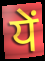
यें